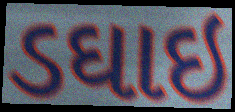
ડઘાઇ